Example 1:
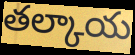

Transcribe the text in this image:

తల్కాయ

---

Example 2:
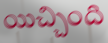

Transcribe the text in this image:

యిచ్చింది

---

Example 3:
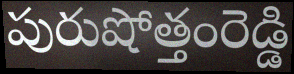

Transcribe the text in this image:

పురుషోత్తంరెడ్డి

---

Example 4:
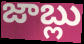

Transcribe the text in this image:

జాబ్లు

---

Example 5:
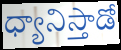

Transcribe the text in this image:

ధ్యానిస్తాడో